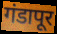
गंडापूर